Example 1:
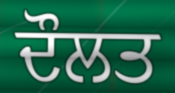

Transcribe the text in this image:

ਦੌਲਤ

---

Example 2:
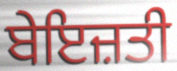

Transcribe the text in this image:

ਬੇਇਜ਼ਤੀ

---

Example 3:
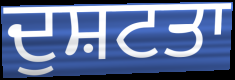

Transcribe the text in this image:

ਦੁਸ਼ਟਤਾ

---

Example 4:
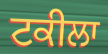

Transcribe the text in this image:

ਟਕੀਲਾ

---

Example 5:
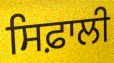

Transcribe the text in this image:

ਸਿਫ਼ਾਲੀ